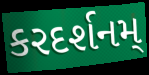
કરદર્શનમ્